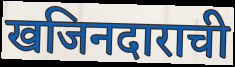
खजिनदाराची